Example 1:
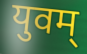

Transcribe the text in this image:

युवम्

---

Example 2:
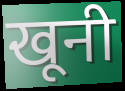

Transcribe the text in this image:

खूनी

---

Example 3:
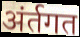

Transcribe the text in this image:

अंर्तगत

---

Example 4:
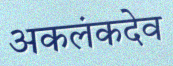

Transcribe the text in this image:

अकलंकदेव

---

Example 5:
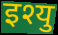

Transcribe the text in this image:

इश्यु